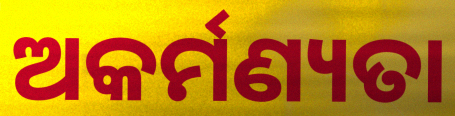
ଅକର୍ମଣ୍ୟତା